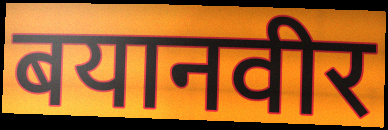
बयानवीर